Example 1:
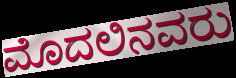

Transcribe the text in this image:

ಮೊದಲಿನವರು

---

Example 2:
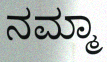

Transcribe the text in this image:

ನಮ್ಮಾ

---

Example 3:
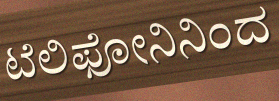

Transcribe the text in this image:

ಟೆಲಿಫೋನಿನಿಂದ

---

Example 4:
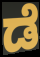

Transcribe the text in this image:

ಡೆ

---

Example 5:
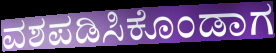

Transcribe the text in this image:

ವಶಪಡಿಸಿಕೊಂಡಾಗ